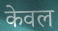
केवल